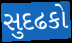
સુદઢકો